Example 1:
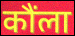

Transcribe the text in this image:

कौंला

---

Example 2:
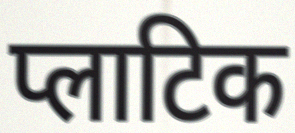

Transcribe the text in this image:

प्लाटिक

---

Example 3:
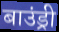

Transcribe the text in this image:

बाउंड्री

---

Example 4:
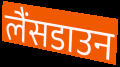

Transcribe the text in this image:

लैंसडाउन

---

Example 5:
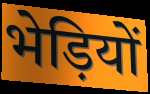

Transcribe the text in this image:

भेड़ियों